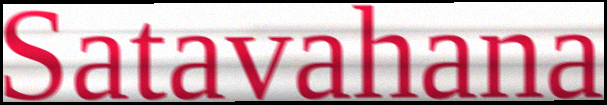
Satavahana